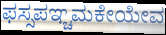
ಫಸ್ಸಪಞ್ಚಮಕೇಯೇವ